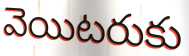
వెయిటరుకు